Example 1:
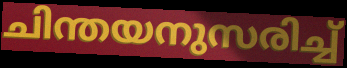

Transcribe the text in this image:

ചിന്തയനുസരിച്ച്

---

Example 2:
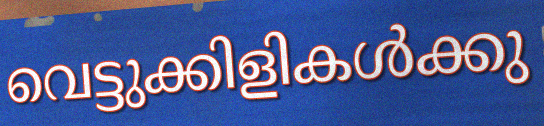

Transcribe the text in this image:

വെട്ടുക്കിളികൾക്കു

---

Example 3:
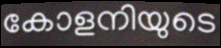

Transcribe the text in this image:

കോളനിയുടെ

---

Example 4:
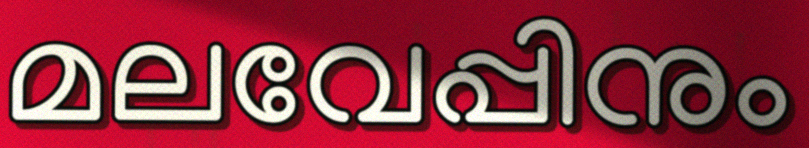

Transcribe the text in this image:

മലവേപ്പിനും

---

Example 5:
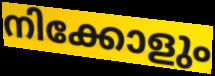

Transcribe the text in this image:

നിക്കോളും